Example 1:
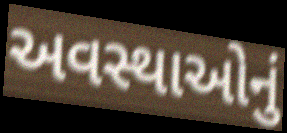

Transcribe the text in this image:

અવસ્થાઓનું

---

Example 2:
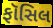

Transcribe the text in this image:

ફૉસિલ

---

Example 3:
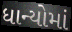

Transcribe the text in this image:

ધાન્યોમાં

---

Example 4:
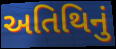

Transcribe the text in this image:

અતિથિનું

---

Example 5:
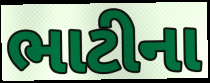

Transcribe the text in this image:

ભાટીના